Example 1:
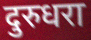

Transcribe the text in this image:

दुरुधरा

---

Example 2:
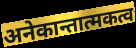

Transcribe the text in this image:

अनेकान्तात्मकत्व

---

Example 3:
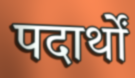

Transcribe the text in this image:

पदार्थों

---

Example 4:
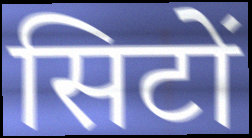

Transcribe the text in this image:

सिटों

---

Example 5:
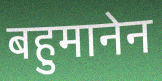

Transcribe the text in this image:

बहुमानेन